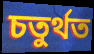
চতুর্থত